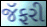
જૅફરી